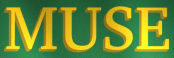
MUSE